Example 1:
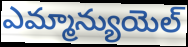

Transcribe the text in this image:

ఎమ్మాన్యుయెల్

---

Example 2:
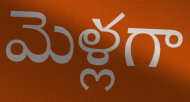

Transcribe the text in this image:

మెళ్లగా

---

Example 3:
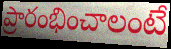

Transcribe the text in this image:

ప్రారంభించాలంటే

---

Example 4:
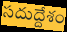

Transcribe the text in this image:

సదుద్దేశం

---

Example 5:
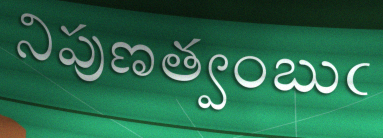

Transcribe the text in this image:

నిపుణత్వంబుఁ